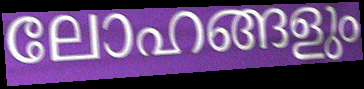
ലോഹങ്ങളും